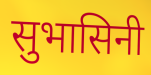
सुभासिनी